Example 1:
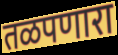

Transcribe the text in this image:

तळपणारा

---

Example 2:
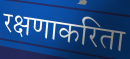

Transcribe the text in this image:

रक्षणाकरिता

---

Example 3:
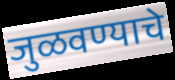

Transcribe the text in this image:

जुळवण्याचे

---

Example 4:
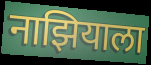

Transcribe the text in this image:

नाझियाला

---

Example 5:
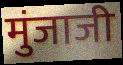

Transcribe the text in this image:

मुंजाजी